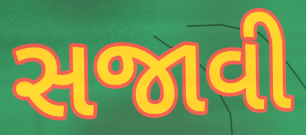
સજાવી